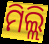
ମିଲ୍ଲି